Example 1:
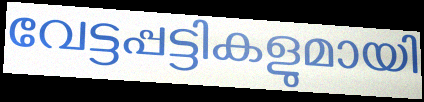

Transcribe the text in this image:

വേട്ടപ്പട്ടികളുമായി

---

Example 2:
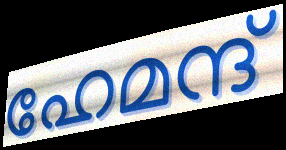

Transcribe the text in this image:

ഹേമന്ദ്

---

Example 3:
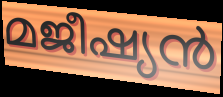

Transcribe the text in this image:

മജീഷ്യൻ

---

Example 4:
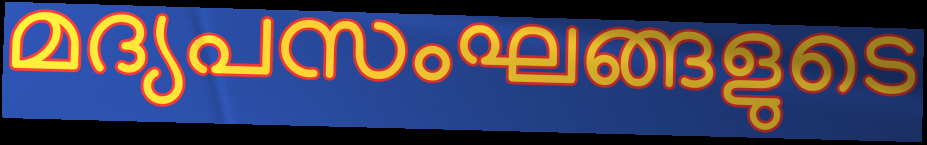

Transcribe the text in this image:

മദ്യപസംഘങ്ങളുടെ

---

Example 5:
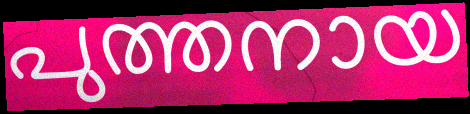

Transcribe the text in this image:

പുത്തനായ